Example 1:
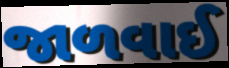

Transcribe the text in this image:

જાળવાઈ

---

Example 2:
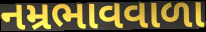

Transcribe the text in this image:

નમ્રભાવવાળા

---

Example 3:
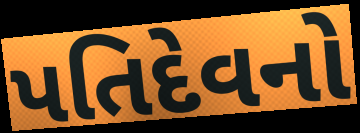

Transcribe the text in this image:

પતિદેવનો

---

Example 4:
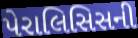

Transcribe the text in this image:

પેરાલિસિસની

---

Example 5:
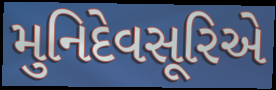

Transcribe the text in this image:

મુનિદેવસૂરિએ